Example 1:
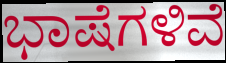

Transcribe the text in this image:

ಭಾಷೆಗಳಿವೆ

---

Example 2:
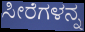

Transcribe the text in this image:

ಸೀರೆಗಳನ್ನ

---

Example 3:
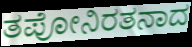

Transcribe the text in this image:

ತಪೋನಿರತನಾದ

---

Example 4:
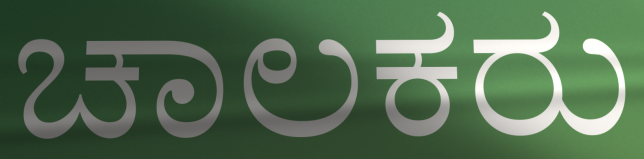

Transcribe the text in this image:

ಚಾಲಕರು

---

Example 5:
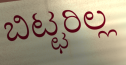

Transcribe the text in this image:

ಬಿಟ್ಟರಿಲ್ಲ